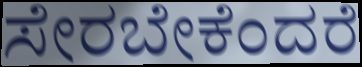
ಸೇರಬೇಕೆಂದರೆ